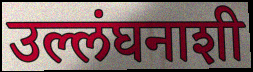
उल्लंघनाशी